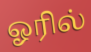
ஓரில்